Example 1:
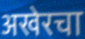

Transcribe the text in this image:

अखेरचा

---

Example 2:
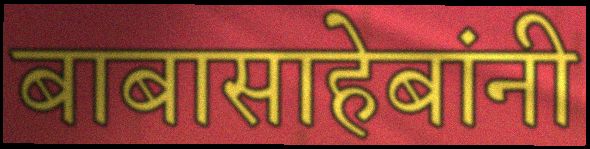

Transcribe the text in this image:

बाबासाहेबांनी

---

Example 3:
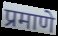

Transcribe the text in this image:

प्रमाणे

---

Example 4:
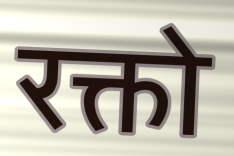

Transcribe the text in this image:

रक्तो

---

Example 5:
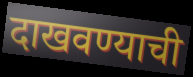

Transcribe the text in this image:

दाखवण्याची